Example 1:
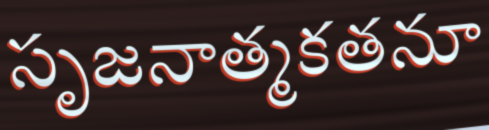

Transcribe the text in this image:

సృజనాత్మకతనూ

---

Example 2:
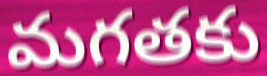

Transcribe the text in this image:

మగతకు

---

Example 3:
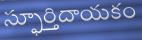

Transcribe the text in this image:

స్ఫూర్తిదాయకం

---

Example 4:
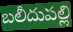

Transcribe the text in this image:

బలీదుపల్లి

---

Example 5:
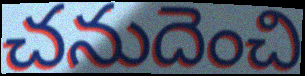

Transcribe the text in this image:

చనుదెంచి